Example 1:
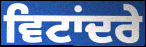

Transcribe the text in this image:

ਵਿਟਾਂਦਰੇ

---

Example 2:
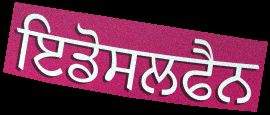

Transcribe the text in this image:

ਇਡੋਸਲਫੈਨ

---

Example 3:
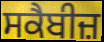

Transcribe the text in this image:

ਸਕੈਬੀਜ਼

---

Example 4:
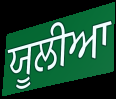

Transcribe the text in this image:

ਯੂਲੀਆ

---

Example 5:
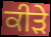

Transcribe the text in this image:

ਕੀੜੇ